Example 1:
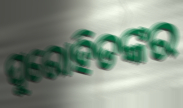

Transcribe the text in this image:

ପୁରୋହିତଙ୍କର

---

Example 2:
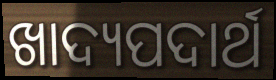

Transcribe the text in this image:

ଖାଦ୍ୟପଦାର୍ଥ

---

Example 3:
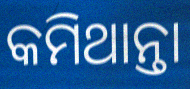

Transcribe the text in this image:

କମିଥାନ୍ତା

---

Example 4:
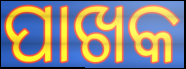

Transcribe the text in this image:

ପାଖକ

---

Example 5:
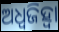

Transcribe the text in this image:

ଅଧ୍ୱଜିହ୍ବା